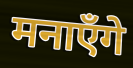
मनाएँगे